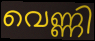
വെണ്ണി